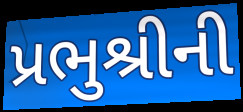
પ્રભુશ્રીની